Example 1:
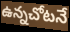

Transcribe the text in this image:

ఉన్నచోటనే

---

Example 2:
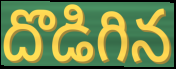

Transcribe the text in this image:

దొడిగిన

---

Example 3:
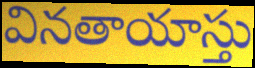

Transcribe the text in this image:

వినతాయాస్తు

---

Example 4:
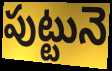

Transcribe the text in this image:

పుట్టునె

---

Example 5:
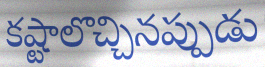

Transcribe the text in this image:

కష్టాలొచ్చినప్పుడు